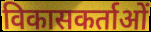
विकासकर्ताओं